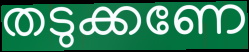
തടുക്കണേ